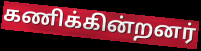
கணிக்கின்றனர்